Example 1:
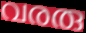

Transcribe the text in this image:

വരരു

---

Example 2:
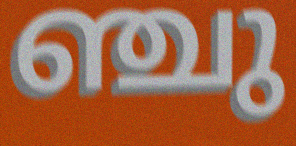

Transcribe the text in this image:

ഞ്ചു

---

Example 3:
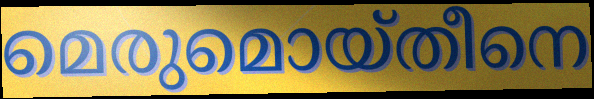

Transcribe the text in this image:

മെരുമൊയ്തീനെ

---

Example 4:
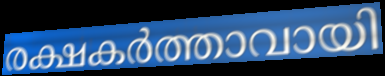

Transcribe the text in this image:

രക്ഷകർത്താവായി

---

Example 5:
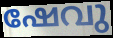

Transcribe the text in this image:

ഷേവു